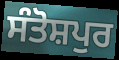
ਸੰਤੋਸ਼ਪੁਰ